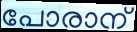
പോരാന്